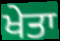
ਖੇਤਾ